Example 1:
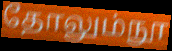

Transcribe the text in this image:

தோலும்நூ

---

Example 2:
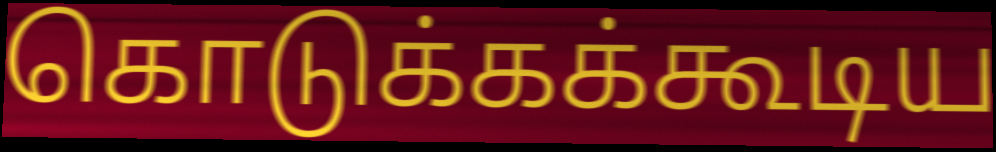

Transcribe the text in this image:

கொடுக்கக்கூடிய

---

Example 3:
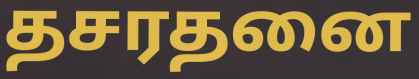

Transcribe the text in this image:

தசரதனை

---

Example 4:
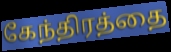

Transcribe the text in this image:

கேந்திரத்தை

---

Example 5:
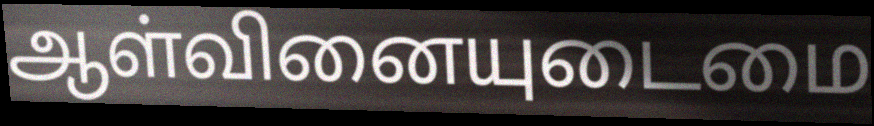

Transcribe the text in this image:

ஆள்வினையுடைமை